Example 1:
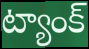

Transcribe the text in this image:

ట్యాంక్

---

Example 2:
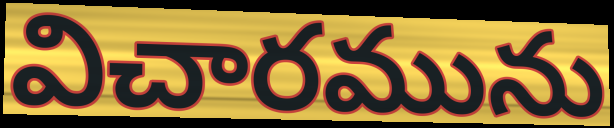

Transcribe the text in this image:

విచారమును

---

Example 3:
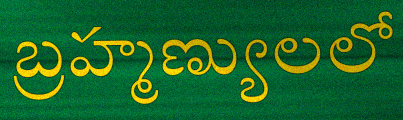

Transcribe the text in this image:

బ్రహ్మణ్యులలో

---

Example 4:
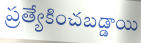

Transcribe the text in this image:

ప్రత్యేకించబడ్డాయి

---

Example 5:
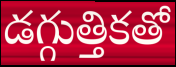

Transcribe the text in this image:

డగ్గుత్తికతో